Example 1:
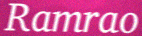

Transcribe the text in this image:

Ramrao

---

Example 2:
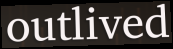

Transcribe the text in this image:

outlived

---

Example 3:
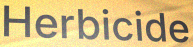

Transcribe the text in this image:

Herbicide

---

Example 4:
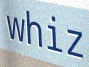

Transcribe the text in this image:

whiz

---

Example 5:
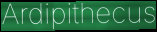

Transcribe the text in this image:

Ardipithecus